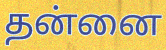
தன்னை